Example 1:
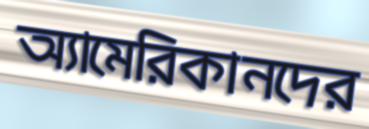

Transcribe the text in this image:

অ্যামেরিকানদের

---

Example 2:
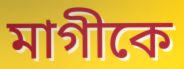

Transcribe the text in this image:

মাগীকে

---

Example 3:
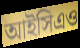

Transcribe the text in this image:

আইসিএও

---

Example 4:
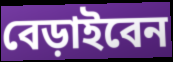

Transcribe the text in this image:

বেড়াইবেন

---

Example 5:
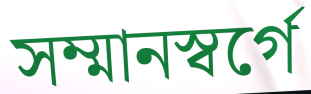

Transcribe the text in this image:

সম্মানস্বর্গে